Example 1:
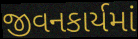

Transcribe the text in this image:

જીવનકાર્યમાં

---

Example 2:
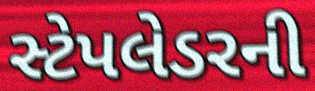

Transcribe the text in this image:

સ્ટેપલેડરની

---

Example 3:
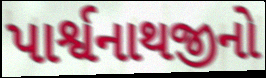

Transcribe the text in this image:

પાર્શ્વનાથજીનો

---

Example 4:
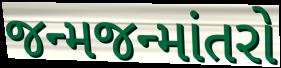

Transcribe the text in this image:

જન્મજન્માંતરો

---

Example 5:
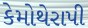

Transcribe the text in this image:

કેમોથેરાપી